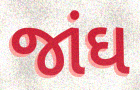
જાંઘ